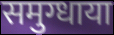
समुग्धाया